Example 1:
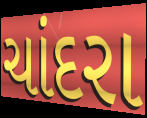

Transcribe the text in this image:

ચાંદરા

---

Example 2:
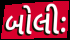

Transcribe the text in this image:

બોલીઃ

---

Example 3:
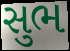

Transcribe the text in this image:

સુભ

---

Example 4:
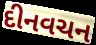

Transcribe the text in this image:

દીનવચન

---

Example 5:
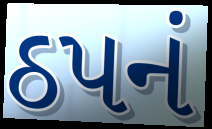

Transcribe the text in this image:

ઠપનં